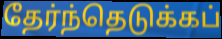
தேர்ந்தெடுக்கப்